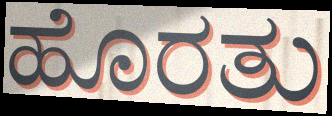
ಹೊರತು